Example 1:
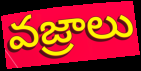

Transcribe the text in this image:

వజ్రాలు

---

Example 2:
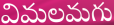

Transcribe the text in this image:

విమలమగు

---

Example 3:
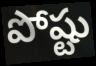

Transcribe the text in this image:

పోష్టు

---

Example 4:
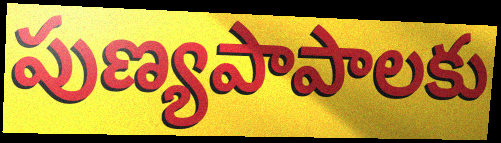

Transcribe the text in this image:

పుణ్యపాపాలకు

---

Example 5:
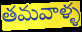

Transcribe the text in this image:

తమవాళ్ళ